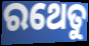
ରଥେତୁ